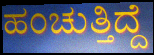
ಹಂಚುತ್ತಿದ್ದೆ